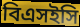
বিএসইসি